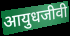
आयुधजीवी